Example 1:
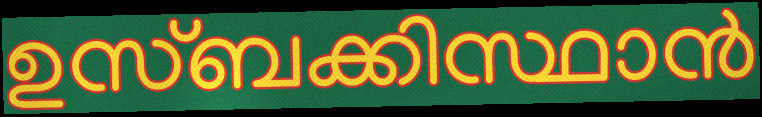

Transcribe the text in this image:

ഉസ്ബക്കിസ്ഥാൻ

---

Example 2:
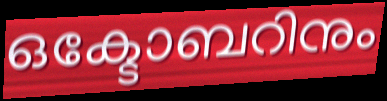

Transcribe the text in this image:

ഒക്ടോബറിനും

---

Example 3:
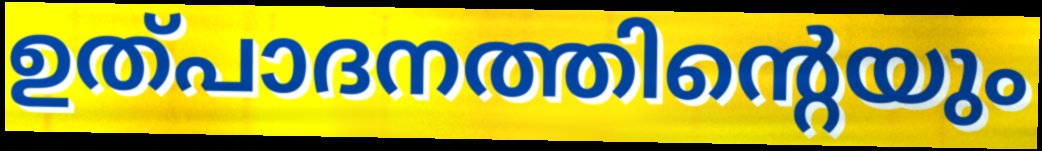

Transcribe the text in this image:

ഉത്പാദനത്തിന്റെയും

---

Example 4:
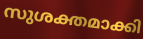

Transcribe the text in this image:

സുശക്തമാക്കി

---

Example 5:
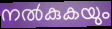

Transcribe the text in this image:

നൽകുകയും